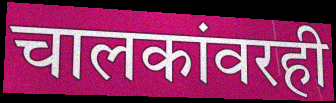
चालकांवरही